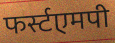
फर्स्टएमपी